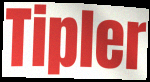
Tipler